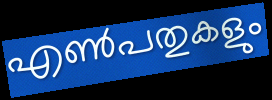
എൺപതുകളും